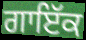
ਗਾਇੱਕ